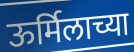
ऊर्मिलाच्या